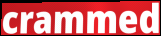
crammed